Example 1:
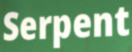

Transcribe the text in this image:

Serpent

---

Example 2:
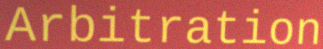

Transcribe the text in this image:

Arbitration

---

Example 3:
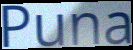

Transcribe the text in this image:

Puna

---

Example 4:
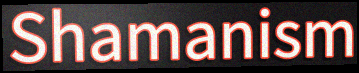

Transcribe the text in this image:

Shamanism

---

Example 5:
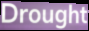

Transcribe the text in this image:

Drought